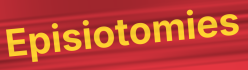
Episiotomies